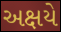
અક્ષયે